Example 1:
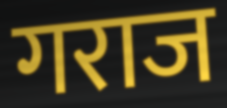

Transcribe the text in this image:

गराज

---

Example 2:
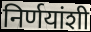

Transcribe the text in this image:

निर्णयांशी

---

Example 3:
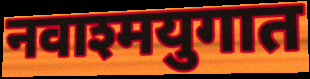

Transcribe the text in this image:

नवाश्मयुगात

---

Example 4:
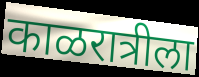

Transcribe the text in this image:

काळरात्रीला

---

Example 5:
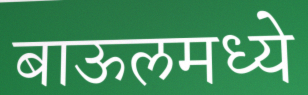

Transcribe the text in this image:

बाऊलमध्ये